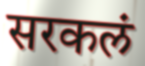
सरकलं